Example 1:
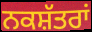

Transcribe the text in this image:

ਨਕਸ਼ੱਤਰਾਂ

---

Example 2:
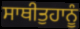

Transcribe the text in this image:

ਸਾਥੀਤੁਹਾਨੂੰ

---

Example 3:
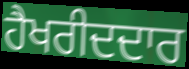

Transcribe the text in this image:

ਹੈਖਰੀਦਦਾਰ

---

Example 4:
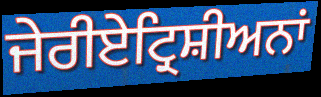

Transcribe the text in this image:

ਜੇਰੀਏਟ੍ਰਿਸ਼ੀਅਨਾਂ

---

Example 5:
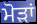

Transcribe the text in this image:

ਮੋੜਾਂ